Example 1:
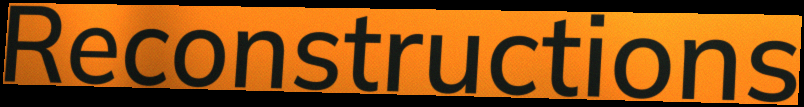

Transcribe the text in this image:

Reconstructions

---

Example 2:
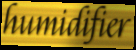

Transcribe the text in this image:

humidifier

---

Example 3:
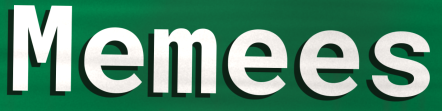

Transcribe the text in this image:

Memees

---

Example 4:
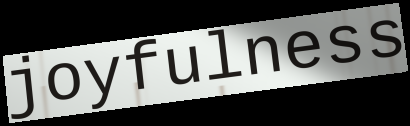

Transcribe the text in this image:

joyfulness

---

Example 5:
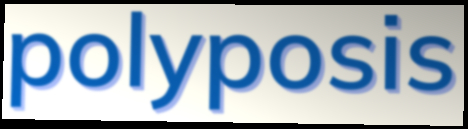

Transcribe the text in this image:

polyposis